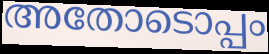
അതോടൊപ്പം